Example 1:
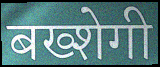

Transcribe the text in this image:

बख्शेगी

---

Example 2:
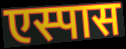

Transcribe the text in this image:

एस्पास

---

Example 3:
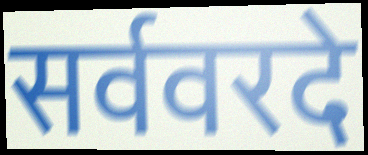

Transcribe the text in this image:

सर्ववरदे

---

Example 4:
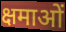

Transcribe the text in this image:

क्षमाओं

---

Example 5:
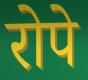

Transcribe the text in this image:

रोपे